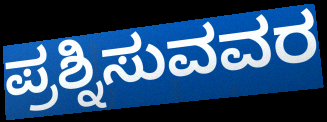
ಪ್ರಶ್ನಿಸುವವರ